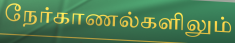
நேர்காணல்களிலும்